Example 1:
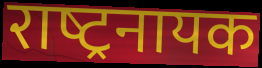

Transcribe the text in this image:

राष्ट्रनायक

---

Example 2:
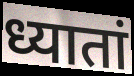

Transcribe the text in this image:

ध्यातां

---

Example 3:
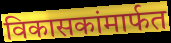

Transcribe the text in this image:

विकासकांमार्फत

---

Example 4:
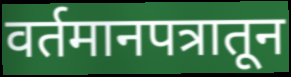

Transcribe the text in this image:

वर्तमानपत्रातून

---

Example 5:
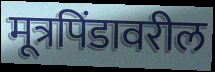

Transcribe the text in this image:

मूत्रपिंडावरील